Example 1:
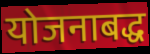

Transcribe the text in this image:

योजनाबद्ध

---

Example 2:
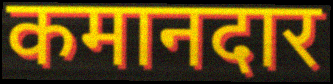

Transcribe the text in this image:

कमानदार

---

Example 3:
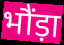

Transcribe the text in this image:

भौंड़ा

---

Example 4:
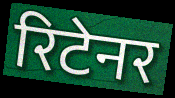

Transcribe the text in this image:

रिटेनर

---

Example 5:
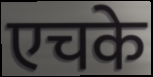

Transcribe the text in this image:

एचके